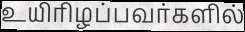
உயிரிழப்பவர்களில்